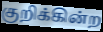
குறிக்கின்ற